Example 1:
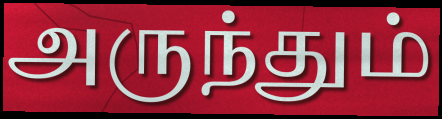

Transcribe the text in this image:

அருந்தும்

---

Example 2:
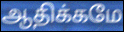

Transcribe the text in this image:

ஆதிக்கமே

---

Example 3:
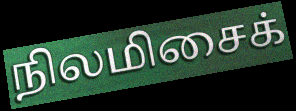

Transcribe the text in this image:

நிலமிசைக்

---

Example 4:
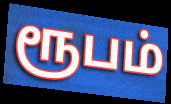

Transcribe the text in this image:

ரூபம்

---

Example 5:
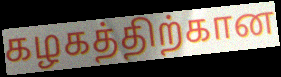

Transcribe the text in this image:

கழகத்திற்கான